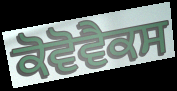
ਕੋਵੋਵੈਕਸ